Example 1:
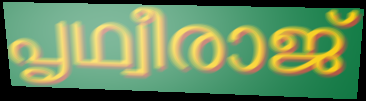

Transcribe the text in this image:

പൃഥ്വീരാജ്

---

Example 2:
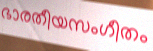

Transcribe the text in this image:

ഭാരതീയസംഗീതം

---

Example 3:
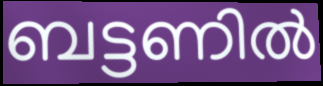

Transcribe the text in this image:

ബട്ടണിൽ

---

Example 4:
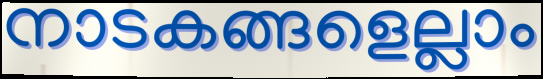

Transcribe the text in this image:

നാടകങ്ങളെല്ലാം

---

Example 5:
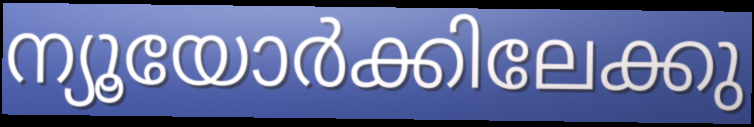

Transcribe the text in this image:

ന്യൂയോർക്കിലേക്കു